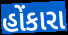
હોંકારા